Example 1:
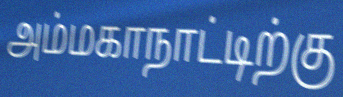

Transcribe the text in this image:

அம்மகாநாட்டிற்கு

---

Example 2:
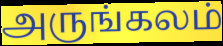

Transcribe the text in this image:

அருங்கலம்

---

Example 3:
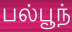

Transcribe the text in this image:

பல்பூந்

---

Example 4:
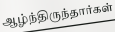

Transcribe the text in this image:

ஆழ்ந்திருந்தார்கள்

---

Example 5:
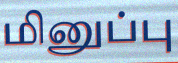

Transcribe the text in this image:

மினுப்பு